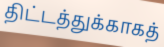
திட்டத்துக்காகத்